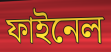
ফাইনেল